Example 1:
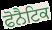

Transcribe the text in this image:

ਫੋਨੈਟਿਕ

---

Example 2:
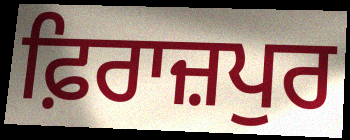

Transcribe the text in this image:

ਫ਼ਿਰਾਜ਼ਪੁਰ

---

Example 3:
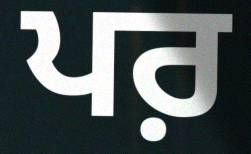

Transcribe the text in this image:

ਪਰ਼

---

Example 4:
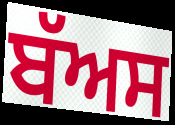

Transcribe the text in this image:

ਬੱਅਸ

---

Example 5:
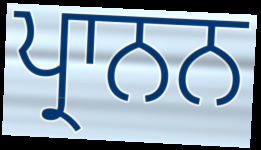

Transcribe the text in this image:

ਪ੍ਰਾਨਨ